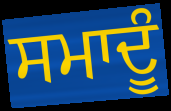
ਸਮਾਦੂੰ